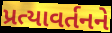
પ્રત્યાવર્તનને